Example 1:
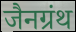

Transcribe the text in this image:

जैनग्रंथ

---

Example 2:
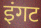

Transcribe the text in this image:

इंगट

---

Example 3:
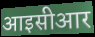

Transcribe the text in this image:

आइसीआर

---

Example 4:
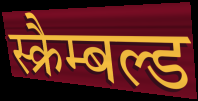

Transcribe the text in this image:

स्क्रैम्बल्ड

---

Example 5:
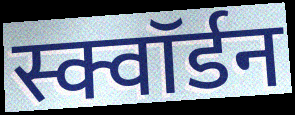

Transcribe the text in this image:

स्क्वॉर्डन